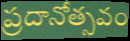
ప్రదానోత్సవం